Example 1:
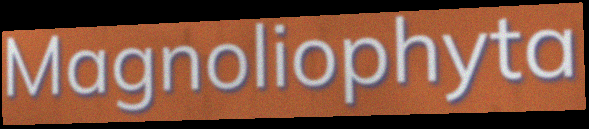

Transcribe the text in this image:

Magnoliophyta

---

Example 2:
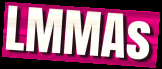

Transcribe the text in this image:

LMMAs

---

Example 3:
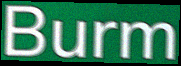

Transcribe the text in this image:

Burm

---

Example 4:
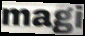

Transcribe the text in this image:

magi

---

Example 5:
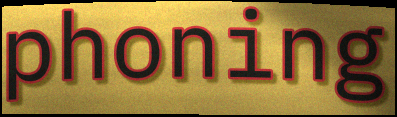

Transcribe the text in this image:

phoning